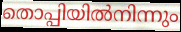
തൊപ്പിയിൽനിന്നും